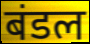
बंडल